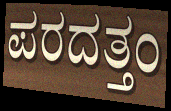
ಪರದತ್ತಂ